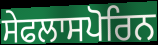
ਸੇਫਲਾਸਪੋਰਿਨ